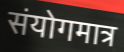
संयोगमात्र